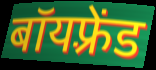
बॉयफ़्रेंड